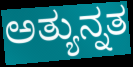
ಅತ್ಯುನ್ನತ